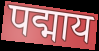
पद्माय